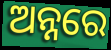
ଅନ୍ନରେ